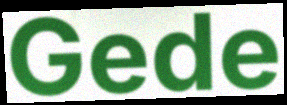
Gede